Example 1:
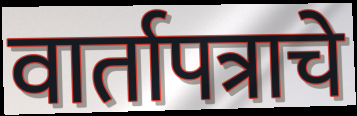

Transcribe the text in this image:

वार्तापत्राचे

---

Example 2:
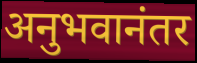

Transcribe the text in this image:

अनुभवानंतर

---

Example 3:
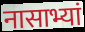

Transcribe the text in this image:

नासाभ्यां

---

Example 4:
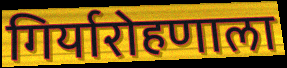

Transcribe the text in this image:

गिर्यारोहणाला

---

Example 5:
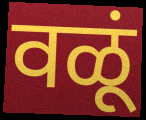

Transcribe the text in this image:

वळूं